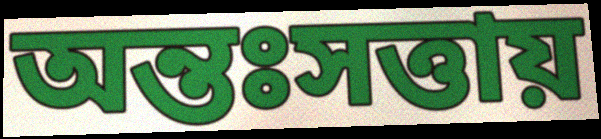
অন্তঃসত্তায়